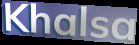
Khalsa